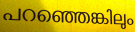
പറഞ്ഞെങ്കിലും